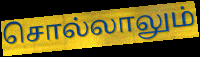
சொல்லாலும்